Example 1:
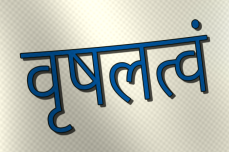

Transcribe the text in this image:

वृषलत्वं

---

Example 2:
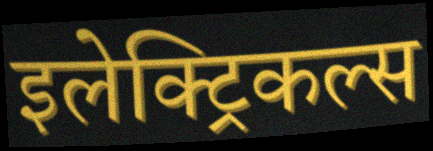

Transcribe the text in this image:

इलेक्ट्रिकल्स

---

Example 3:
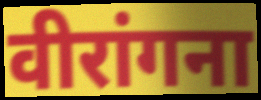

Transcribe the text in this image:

वीरांगना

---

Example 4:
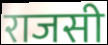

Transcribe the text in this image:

राजसी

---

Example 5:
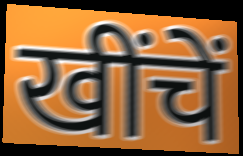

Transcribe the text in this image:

खींचें